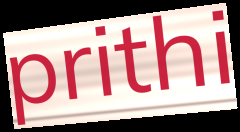
prithi